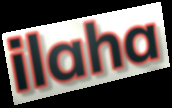
ilaha